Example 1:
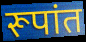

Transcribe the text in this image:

रूपांत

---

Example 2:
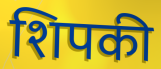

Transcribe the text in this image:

शिपकी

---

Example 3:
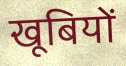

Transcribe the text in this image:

खूबियों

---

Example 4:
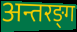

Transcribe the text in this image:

अन्तरङ्ग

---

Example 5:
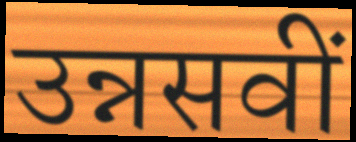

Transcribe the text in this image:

उन्नसवीं